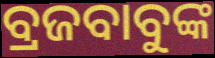
ବ୍ରଜବାବୁଙ୍କ